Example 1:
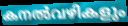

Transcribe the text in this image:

കനൽവഴികളും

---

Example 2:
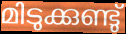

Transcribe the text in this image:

മിടുക്കുണ്ടു്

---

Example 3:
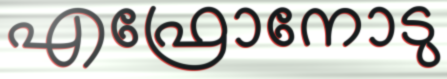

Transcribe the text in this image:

എഫ്രോനോടു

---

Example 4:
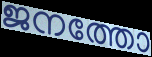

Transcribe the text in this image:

ജനത്തോ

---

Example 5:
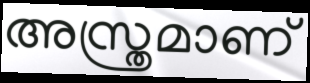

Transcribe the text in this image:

അസ്ത്രമാണ്